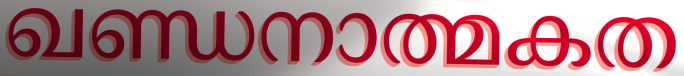
ഖണ്ഡനാത്മകത